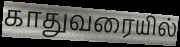
காதுவரையில்